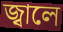
জ্বালে